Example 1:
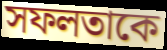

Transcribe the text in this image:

সফলতাকে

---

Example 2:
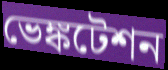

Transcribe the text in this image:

ভেঙ্কটেশন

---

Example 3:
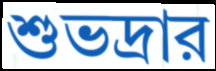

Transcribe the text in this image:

শুভদ্রার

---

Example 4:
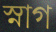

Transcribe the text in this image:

স্নাগ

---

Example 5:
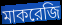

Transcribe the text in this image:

মাকরেজি